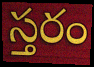
స్తరం